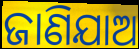
ଜାଣିଯାଅ